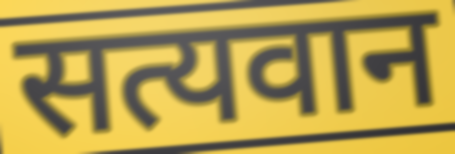
सत्यवान